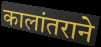
कालांतराने